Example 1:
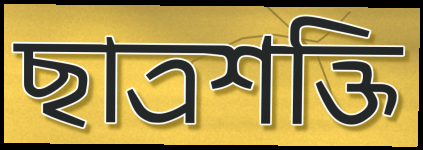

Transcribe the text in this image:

ছাত্ৰশক্তি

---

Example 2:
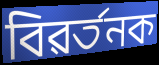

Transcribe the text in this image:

বিৱৰ্তনক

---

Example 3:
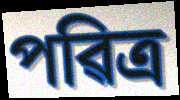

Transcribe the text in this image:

পৱিত্ৰ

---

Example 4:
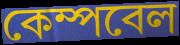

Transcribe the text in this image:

কেম্পবেল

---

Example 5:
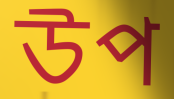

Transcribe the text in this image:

উপ